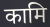
कामि